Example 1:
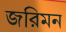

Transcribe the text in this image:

জরিমন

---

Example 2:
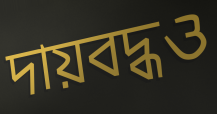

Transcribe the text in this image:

দায়বদ্ধও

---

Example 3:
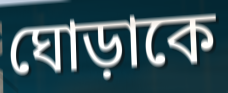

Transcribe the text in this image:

ঘোড়াকে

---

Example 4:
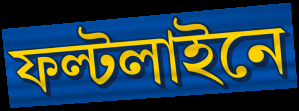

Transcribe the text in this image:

ফল্টলাইনে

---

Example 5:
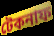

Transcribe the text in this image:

টেকনাফ